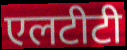
एलटीटी